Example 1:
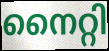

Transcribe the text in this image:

നൈറ്റി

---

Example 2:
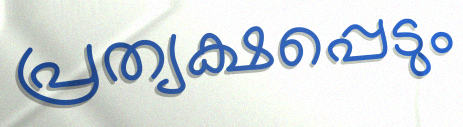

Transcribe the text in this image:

പ്രത്യക്ഷപ്പെടും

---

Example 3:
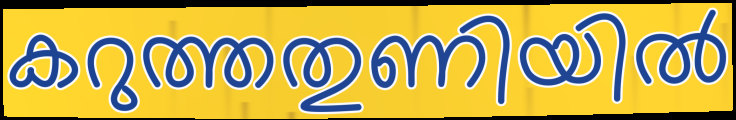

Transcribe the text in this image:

കറുത്തതുണിയിൽ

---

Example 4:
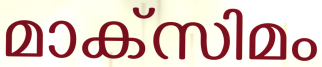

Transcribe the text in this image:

മാക്‌സിമം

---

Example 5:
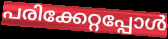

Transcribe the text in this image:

പരിക്കേറ്റപ്പോൾ